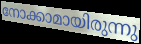
നോക്കാമായിരുന്നു